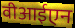
वीआईएन